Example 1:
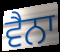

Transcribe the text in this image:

ਵੈਨਾ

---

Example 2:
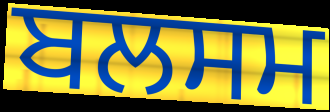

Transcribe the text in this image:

ਬਲਸਮ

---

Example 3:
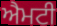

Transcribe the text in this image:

ਐਮਟੀ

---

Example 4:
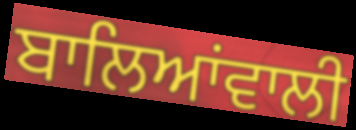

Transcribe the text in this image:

ਬਾਲਿਆਂਵਾਲੀ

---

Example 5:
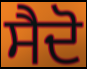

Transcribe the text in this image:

ਸੈਦੋ